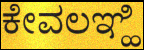
ಕೇವಲಞ್ಹಿ